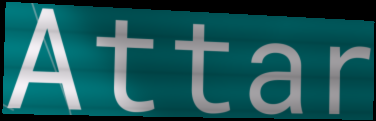
Attar